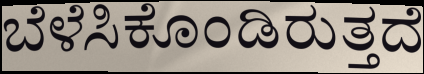
ಬೆಳೆಸಿಕೊಂಡಿರುತ್ತದೆ